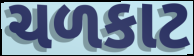
ચળકાટ